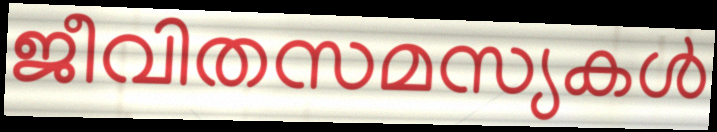
ജീവിതസമസ്യകൾ